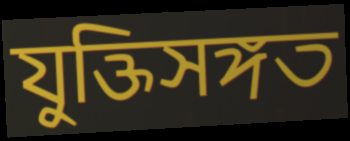
যুক্তিসঙ্গত